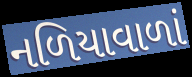
નળિયાવાળાં